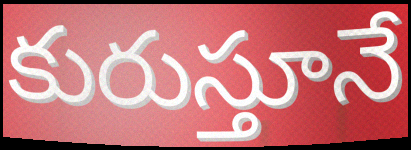
కురుస్తూనే